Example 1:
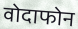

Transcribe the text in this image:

वोदाफोन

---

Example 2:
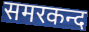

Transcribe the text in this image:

समरकन्द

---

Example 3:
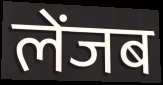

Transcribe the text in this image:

लेंजब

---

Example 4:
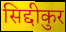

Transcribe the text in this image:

सिद्दीकुर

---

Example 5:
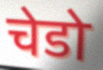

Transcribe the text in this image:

चेडो